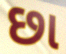
છા